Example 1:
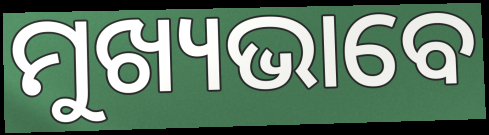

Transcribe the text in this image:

ମୁଖ୍ୟଭାବେ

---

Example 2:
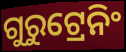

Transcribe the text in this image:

ଗୁରୁଟ୍ରେନିଂ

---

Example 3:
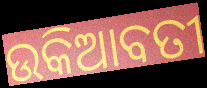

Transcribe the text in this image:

ଉକିଆବତୀ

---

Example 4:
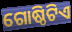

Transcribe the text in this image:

ଗୋଷ୍ଠିଟିଏ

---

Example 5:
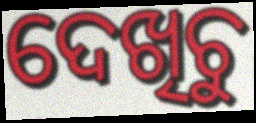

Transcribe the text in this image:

ଦେଖିଚୁ